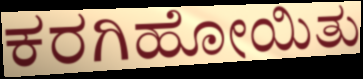
ಕರಗಿಹೋಯಿತು